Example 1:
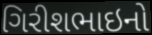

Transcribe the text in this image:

ગિરીશભાઇનો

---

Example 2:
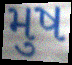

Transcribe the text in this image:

મુષ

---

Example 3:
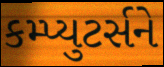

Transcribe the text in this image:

કમ્પ્યુટર્સને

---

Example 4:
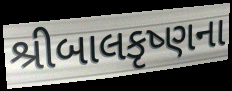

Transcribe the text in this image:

શ્રીબાલકૃષ્ણના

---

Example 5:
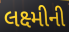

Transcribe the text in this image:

લક્ષ્મીની